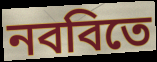
নববিতে